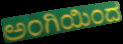
ಅಂಗಿಯಿಂದ